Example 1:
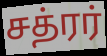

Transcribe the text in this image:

சத்ரர்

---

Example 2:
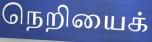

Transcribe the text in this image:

நெறியைக்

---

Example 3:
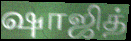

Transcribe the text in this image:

ஷாஜித்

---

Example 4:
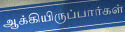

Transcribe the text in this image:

ஆக்கியிருப்பார்கள்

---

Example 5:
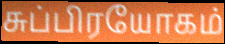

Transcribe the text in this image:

சுப்பிரயோகம்